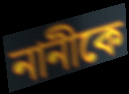
নানীকে